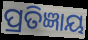
ପ୍ରତିଜ୍ଞାୟ